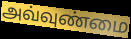
அவ்வுண்மை